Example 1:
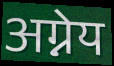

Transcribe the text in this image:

अग्नेय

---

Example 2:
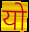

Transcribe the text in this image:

यो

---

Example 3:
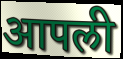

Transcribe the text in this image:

आपली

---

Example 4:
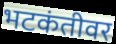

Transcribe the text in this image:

भटकंतीवर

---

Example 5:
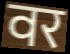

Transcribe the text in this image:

वर